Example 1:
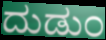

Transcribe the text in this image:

ದುಡುಂ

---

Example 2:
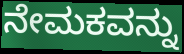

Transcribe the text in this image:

ನೇಮಕವನ್ನು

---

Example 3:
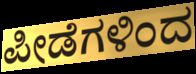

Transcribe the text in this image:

ಪೀಡೆಗಳಿಂದ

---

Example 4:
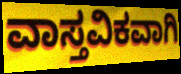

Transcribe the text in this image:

ವಾಸ್ತವಿಕವಾಗಿ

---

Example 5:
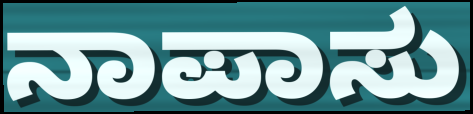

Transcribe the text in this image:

ನಾಪಾಸು